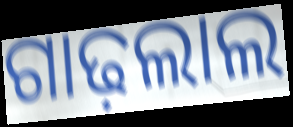
ଗାଢ଼ଲାଲ